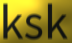
ksk